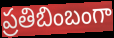
ప్రతిబింబంగా